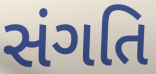
સંગતિ